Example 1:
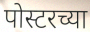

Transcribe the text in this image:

पोस्टरच्या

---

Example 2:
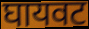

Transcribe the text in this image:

घायवट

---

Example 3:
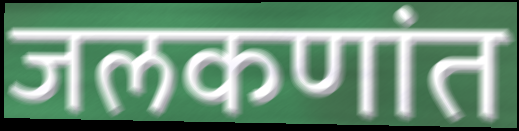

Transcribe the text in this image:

जलकणांत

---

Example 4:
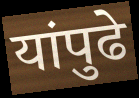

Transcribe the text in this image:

यांपुढे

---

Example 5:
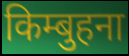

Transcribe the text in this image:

किम्बुहना